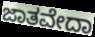
ಜಾತವೇದಾ